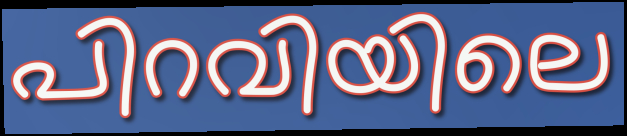
പിറവിയിലെ